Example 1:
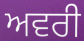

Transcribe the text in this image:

ਅਵਰੀ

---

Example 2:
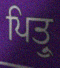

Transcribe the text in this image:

ਪਿਤ੍ਰੁ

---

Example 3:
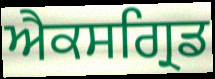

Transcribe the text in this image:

ਐਕਸਗ੍ਰਿਡ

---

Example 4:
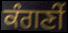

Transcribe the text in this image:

ਕੰਗਣੀਂ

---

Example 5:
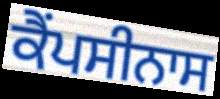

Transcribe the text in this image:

ਕੈਂਪਸੀਨਾਸ